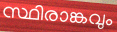
സ്ഥിരാങ്കവും